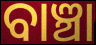
ବାଞ୍ଚା